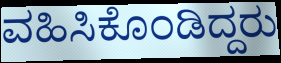
ವಹಿಸಿಕೊಂಡಿದ್ದರು